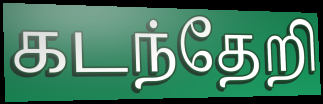
கடந்தேறி